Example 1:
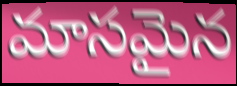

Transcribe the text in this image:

మాసమైన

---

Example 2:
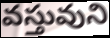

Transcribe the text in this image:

వస్తువుని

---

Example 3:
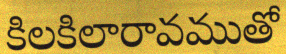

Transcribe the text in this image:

కిలకిలారావముతో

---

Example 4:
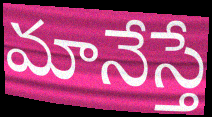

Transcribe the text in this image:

మానేస్తే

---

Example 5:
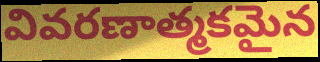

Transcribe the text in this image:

వివరణాత్మకమైన